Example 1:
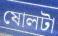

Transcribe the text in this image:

ষোলটা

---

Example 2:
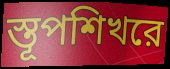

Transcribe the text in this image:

স্তূপশিখরে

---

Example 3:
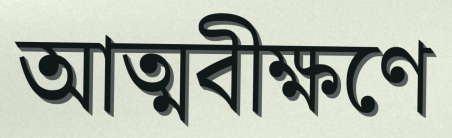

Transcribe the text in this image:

আত্মবীক্ষণে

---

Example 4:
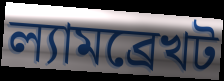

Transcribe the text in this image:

ল্যামব্রেখট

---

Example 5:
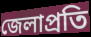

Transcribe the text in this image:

জেলাপ্রতি